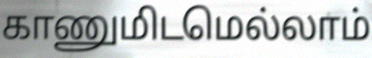
காணுமிடமெல்லாம்